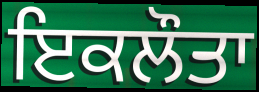
ਇਕਲੌਤਾ